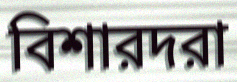
বিশারদরা